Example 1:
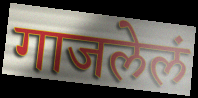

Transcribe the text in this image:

गाजलेलं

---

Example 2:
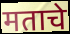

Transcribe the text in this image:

मताचे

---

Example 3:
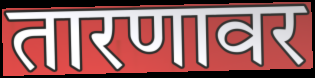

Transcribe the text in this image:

तारणावर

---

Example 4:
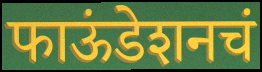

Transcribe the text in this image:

फाऊंडेशनचं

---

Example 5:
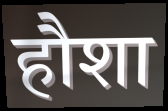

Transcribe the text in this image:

हौशा